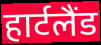
हार्टलैंड